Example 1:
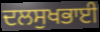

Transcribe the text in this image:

ਦਲਸੁਖਭਾਈ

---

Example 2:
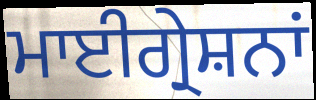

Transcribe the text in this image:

ਮਾਈਗ੍ਰੇਸ਼ਨਾਂ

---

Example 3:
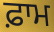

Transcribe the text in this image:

ਫ਼ਾਮ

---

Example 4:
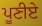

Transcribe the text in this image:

ਪੂਣੀਏ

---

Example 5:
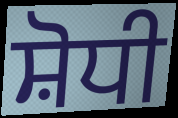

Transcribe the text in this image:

ਸ਼ੋਧੀ